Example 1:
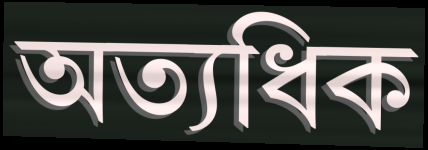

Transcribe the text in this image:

অত্যধিক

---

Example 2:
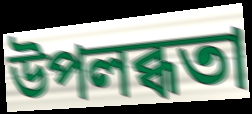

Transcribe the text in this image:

উপলব্ধতা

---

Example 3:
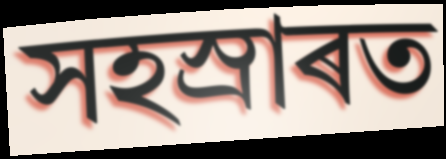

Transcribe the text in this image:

সহস্ৰাৰত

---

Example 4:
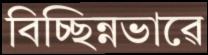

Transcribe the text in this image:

বিচ্ছিন্নভাৱে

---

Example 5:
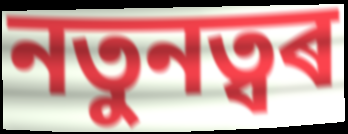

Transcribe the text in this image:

নতুনত্বৰ